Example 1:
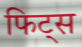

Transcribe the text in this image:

फिट्स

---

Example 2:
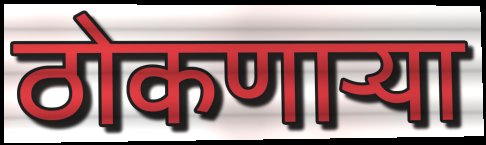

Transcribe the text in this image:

ठोकणाऱ्या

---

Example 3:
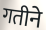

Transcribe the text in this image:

गतीने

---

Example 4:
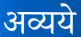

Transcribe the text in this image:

अव्यये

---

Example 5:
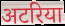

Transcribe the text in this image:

अटरिया